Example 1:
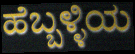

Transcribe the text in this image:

ಹೆಬ್ಬಳ್ಳಿಯ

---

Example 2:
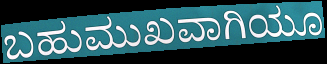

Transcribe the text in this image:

ಬಹುಮುಖವಾಗಿಯೂ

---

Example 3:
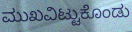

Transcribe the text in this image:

ಮುಖವಿಟ್ಟುಕೊಂಡು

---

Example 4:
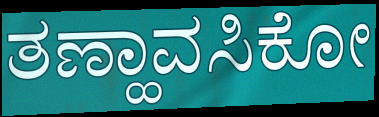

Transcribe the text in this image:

ತಣ್ಹಾವಸಿಕೋ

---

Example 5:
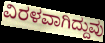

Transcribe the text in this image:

ವಿರಳವಾಗಿದ್ದುವು